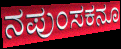
ನಪುಂಸಕನೂ